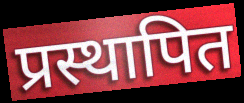
प्रस्थापित